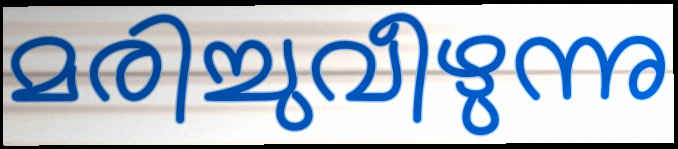
മരിച്ചുവീഴുന്നു